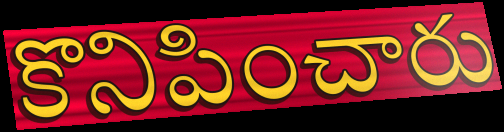
కొనిపించారు